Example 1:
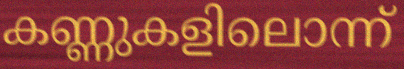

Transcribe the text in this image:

കണ്ണുകളിലൊന്ന്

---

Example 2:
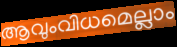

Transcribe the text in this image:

ആവുംവിധമെല്ലാം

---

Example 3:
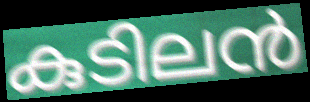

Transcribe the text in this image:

കുടിലൻ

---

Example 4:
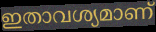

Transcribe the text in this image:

ഇതാവശ്യമാണ്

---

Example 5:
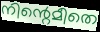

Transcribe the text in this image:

നിന്റെമീതെ